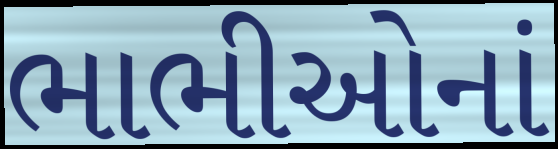
ભાભીઓનાં